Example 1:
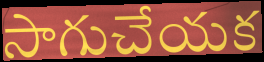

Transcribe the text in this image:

సాగుచేయక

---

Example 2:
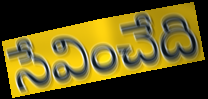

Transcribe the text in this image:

సేవించేది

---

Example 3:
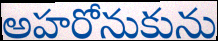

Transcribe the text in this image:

అహరోనుకును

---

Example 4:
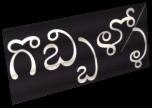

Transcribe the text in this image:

గొబ్బిళ్ళో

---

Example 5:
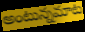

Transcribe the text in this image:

అంటున్నమాట